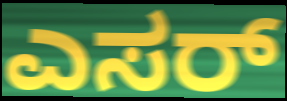
ಎಸರ್